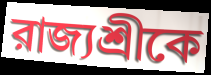
রাজ্যশ্রীকে